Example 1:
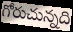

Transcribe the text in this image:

గోరుచున్నది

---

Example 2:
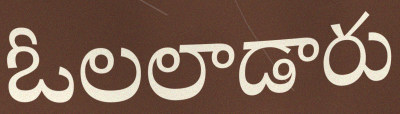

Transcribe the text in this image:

ఓలలాడారు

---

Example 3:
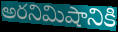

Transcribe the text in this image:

అరనిమిషానికి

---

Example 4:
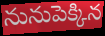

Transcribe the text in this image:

నునుపెక్కిన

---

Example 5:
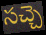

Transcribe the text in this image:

సచ్చె